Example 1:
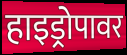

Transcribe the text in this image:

हाइड्रोपावर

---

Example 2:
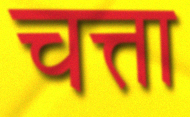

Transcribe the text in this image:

चत्ता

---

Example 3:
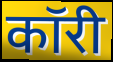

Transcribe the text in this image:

कॉरी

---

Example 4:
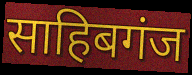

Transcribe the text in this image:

साहिबगंज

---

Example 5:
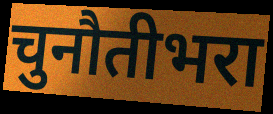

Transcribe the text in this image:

चुनौतीभरा